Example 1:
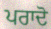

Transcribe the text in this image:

ਪਰਾਦੋ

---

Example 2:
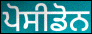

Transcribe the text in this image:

ਪੋਸੀਡੋਨ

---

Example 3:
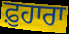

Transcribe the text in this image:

ਫ਼ੁਹਾਰਾ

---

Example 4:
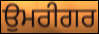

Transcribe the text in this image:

ਉਮਰੀਗਰ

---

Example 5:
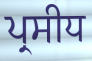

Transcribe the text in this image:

ਪ੍ਰਸੀਧ